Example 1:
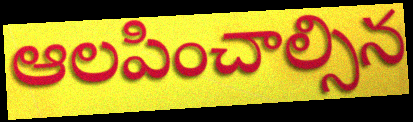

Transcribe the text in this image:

ఆలపించాల్సిన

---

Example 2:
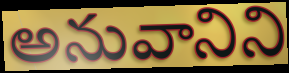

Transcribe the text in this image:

అనువానిని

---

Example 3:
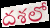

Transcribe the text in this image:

దశలో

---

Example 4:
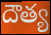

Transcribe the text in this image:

దౌత్య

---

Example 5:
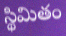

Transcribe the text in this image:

స్థిమితం